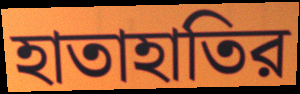
হাতাহাতির